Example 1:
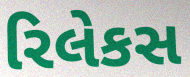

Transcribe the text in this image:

રિલેકસ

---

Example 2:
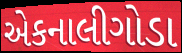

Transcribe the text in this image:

એકનાલીગોડા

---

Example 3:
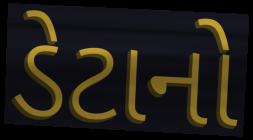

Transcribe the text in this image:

ડેટાનો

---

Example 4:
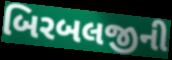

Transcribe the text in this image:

બિરબલજીની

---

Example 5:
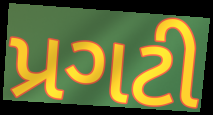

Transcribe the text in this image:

પ્રગટી